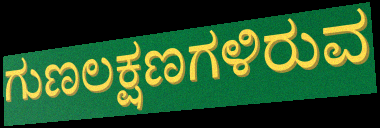
ಗುಣಲಕ್ಷಣಗಳಿರುವ